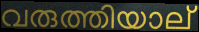
വരുത്തിയാല്